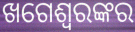
ଖଗେଶ୍ୱରଙ୍କର